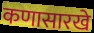
कणासारखे